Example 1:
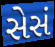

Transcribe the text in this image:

સેસં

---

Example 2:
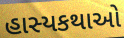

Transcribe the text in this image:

હાસ્યકથાઓ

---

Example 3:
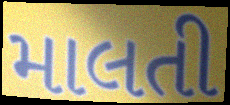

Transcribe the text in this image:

માલતી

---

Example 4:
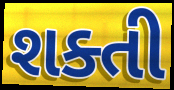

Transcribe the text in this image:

શક્તી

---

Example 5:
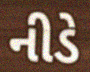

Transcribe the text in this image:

નીડે